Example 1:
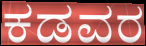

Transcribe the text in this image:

ಕಡವರ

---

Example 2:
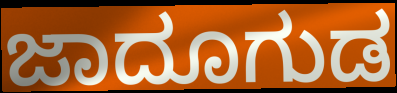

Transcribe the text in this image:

ಜಾದೂಗುಡ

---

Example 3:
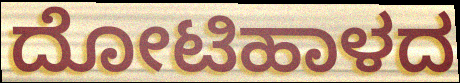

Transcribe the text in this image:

ದೋಟಿಹಾಳದ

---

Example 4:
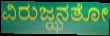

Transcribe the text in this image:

ವಿರುಜ್ಝನತೋ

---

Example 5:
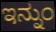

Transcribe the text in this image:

ಇನ್ನುಂ